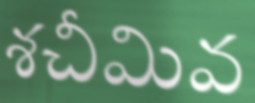
శచీమివ